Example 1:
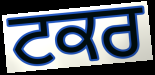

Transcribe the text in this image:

ਟਕਰ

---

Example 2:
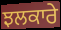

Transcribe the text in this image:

ਝਲਕਾਰੇ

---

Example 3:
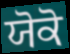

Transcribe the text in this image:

ਯੋਕੋ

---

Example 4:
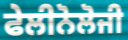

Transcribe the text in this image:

ਫੇਲੀਨੋਲੋਜੀ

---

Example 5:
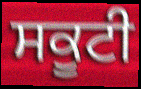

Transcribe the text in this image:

ਸਕੂਟੀ